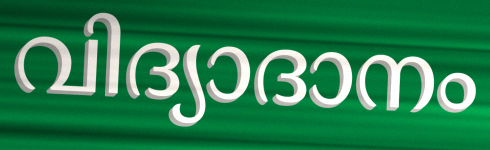
വിദ്യാദാനം